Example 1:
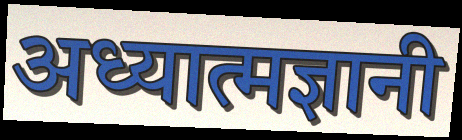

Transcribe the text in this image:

अध्यात्मज्ञानी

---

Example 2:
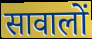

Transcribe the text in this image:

सावालों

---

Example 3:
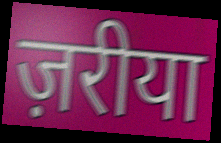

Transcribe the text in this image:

ज़रीया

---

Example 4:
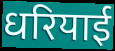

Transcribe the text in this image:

धरियाई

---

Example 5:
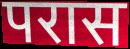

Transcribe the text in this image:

परास